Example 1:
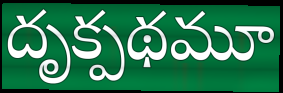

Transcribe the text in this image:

దృక్పథమూ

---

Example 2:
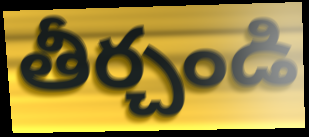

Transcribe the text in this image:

తీర్చండి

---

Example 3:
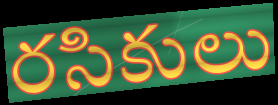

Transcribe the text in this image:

రసికులు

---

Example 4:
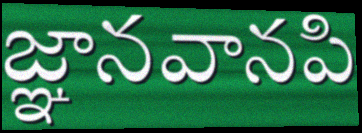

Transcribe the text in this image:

జ్ఞానవానపి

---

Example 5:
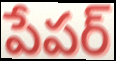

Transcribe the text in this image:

పేపర్